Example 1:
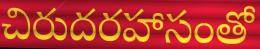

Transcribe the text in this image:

చిరుదరహాసంతో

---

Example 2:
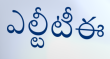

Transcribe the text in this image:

ఎల్టీటీఈ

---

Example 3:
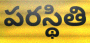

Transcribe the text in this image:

పరస్థితి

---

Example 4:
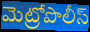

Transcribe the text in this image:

మెట్రోపొలీస్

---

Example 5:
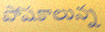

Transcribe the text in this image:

పోషకాలున్న